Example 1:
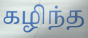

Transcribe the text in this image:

கழிந்த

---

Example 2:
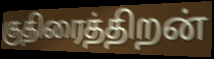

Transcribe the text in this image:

குதிரைத்திறன்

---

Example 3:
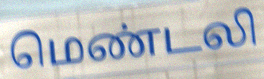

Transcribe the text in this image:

மெண்டலி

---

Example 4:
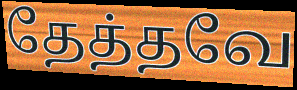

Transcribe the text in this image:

தேத்தவே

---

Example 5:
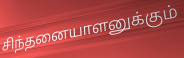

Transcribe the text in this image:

சிந்தனையாளனுக்கும்